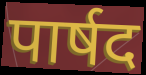
पार्षद